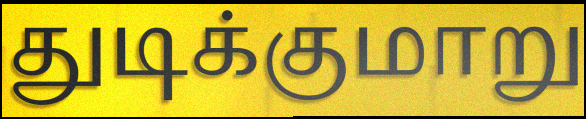
துடிக்குமாறு